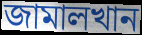
জামালখান